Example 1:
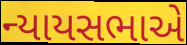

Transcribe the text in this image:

ન્યાયસભાએ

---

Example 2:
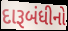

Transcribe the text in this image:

દારૂબંધીનો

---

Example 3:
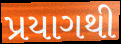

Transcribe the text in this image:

પ્રયાગથી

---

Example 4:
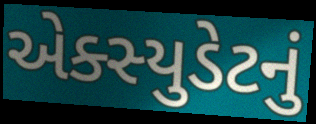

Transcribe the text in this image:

એક્સ્યુડેટનું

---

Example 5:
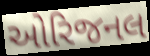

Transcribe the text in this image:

ઓરિજનલ